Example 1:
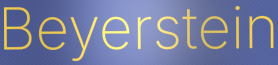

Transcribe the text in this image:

Beyerstein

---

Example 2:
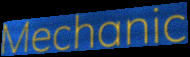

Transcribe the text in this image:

Mechanic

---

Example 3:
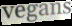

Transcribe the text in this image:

vegans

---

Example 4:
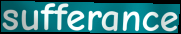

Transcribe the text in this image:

sufferance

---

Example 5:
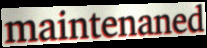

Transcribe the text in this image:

maintenaned